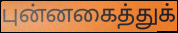
புன்னகைத்துக்